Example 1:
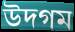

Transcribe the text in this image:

উদগম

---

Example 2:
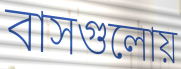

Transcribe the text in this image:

বাসগুলোয়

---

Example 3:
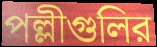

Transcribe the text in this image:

পল্লীগুলির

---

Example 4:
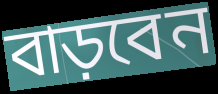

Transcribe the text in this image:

বাড়বেন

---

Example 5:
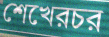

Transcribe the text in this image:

শেখেরচর